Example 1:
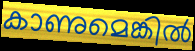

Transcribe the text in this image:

കാണുമെങ്കിൽ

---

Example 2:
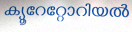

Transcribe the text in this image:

ക്യൂറേറ്റോറിയൽ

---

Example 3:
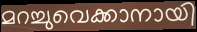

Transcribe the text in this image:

മറച്ചുവെക്കാനായി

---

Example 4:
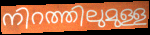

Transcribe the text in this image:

നിറത്തിലുമുള്ള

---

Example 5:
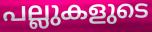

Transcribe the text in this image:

പല്ലുകളുടെ